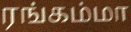
ரங்கம்மா